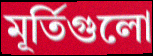
মূর্তিগুলো